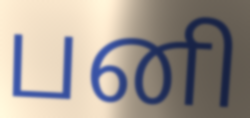
பனி